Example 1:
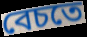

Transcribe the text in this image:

বেচতে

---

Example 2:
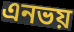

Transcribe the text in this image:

এনভয়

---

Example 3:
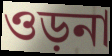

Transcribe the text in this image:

ওড়না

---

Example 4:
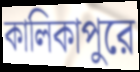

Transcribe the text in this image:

কালিকাপুরে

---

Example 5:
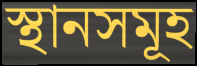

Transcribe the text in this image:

স্থানসমূহ